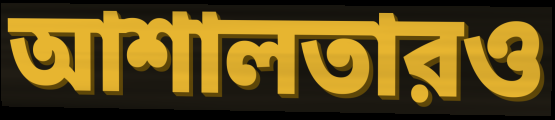
আশালতারও